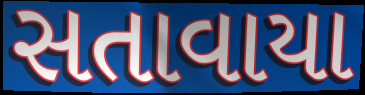
સતાવાયા